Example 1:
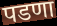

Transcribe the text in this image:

पडणा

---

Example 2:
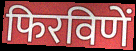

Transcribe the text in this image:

फिरविणें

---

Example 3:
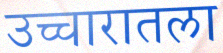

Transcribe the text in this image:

उच्चारातला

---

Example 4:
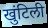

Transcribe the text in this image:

खुंटिली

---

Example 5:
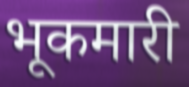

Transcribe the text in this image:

भूकमारी